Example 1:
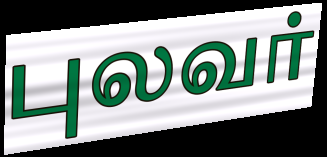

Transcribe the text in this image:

புலவர்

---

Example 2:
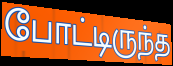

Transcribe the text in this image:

போட்டிருந்த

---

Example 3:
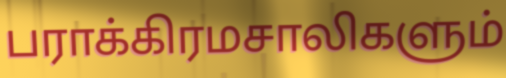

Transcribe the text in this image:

பராக்கிரமசாலிகளும்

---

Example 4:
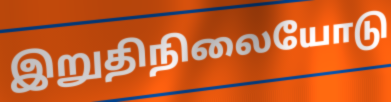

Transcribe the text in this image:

இறுதிநிலையோடு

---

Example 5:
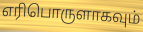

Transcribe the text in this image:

எரிபொருளாகவும்